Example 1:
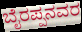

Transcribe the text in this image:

ಬೈರಪ್ಪನವರ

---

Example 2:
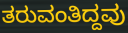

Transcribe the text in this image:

ತರುವಂತಿದ್ದವು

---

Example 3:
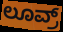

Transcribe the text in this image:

ಲೂವ್ರ್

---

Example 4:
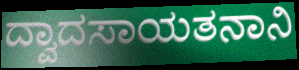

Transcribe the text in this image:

ದ್ವಾದಸಾಯತನಾನಿ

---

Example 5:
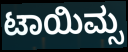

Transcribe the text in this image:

ಟಾಯಿಮ್ಸ